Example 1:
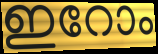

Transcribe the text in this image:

ഇറോം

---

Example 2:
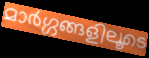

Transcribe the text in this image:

മാർഗ്ഗങ്ങളിലൂടെ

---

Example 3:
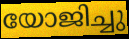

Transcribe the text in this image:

യോജിച്ചു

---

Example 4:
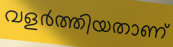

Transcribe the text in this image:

വളർത്തിയതാണ്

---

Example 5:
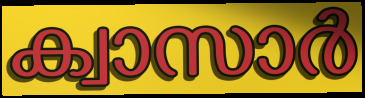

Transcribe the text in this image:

ക്വാസാർ